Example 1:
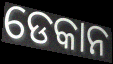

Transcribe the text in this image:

ଡେକାନ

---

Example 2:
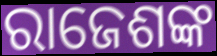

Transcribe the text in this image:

ରାଜେଶଙ୍କ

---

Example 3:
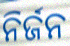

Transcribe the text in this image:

ନିର୍ଜନ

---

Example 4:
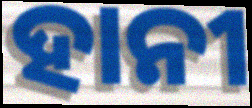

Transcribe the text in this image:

ହାନୀ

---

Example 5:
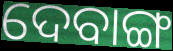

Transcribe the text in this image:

ଦେବାଙ୍ଗ